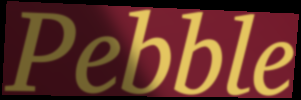
Pebble